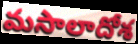
మసాలాదోశ